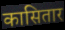
कासितार